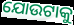
ଯୋଉଟାକୁ